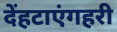
देंहटाएंगहरी